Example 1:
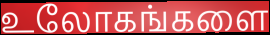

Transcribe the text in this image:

உலோகங்களை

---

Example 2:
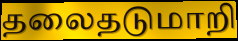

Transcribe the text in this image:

தலைதடுமாறி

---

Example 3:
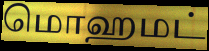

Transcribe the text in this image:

மொஹமட்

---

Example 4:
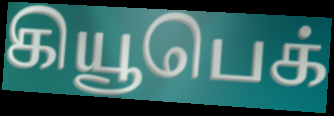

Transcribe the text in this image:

கியூபெக்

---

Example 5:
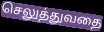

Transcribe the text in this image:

செலுத்துவதை